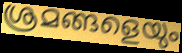
ശ്രമങ്ങളെയും